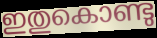
ഇതുകൊണ്ടു